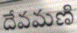
దేవమణి